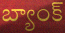
బ్యాంక్